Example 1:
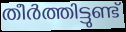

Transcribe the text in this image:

തീർത്തിട്ടുണ്ട്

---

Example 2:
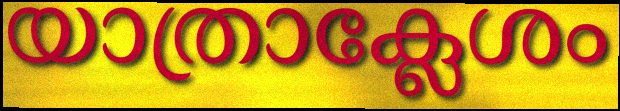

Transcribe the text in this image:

യാത്രാക്ലേശം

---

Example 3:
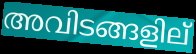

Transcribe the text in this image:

അവിടങ്ങളില്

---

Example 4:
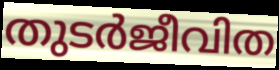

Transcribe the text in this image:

തുടർജീവിത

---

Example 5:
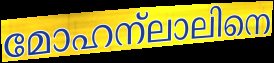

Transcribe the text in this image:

മോഹന്ലാലിനെ